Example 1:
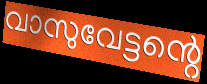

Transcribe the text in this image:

വാസുവേട്ടന്റെ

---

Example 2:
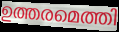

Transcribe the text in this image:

ഉത്തരമെത്തി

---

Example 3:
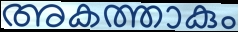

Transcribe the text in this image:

അകത്താകും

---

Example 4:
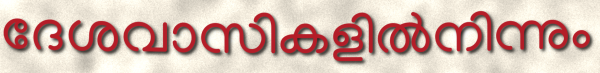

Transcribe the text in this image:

ദേശവാസികളിൽനിന്നും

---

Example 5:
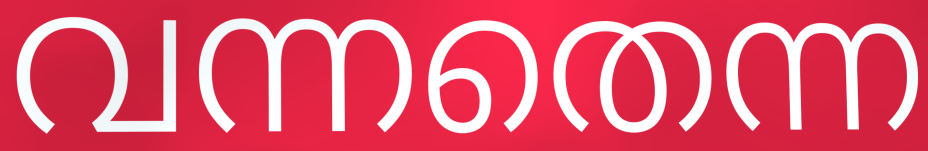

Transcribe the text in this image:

വന്നതെന്ന